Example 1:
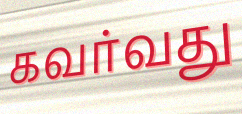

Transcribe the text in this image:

கவர்வது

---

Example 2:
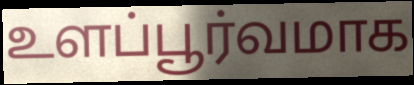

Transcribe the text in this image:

உளப்பூர்வமாக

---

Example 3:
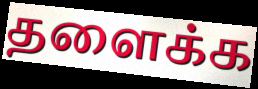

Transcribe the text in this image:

தளைக்க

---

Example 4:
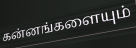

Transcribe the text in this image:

கன்னங்களையும்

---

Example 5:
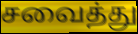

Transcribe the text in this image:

சவைத்து